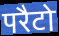
परैटो